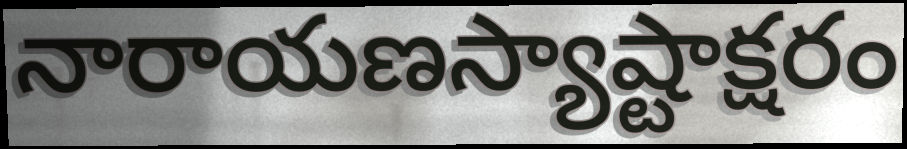
నారాయణస్యాష్టాక్షరం